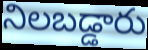
నిలబడ్డారు